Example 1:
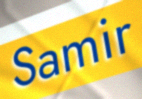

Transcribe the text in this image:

Samir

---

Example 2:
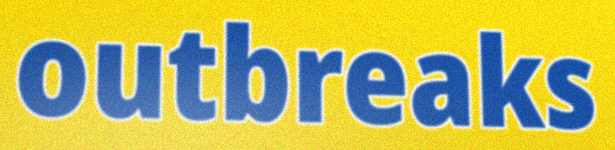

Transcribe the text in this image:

outbreaks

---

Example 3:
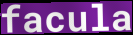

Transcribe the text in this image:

facula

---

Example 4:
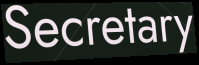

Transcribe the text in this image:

Secretary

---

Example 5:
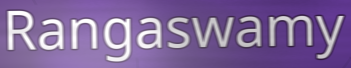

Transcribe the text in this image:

Rangaswamy